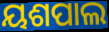
ୟଶପାଲ